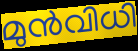
മുൻവിധി